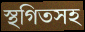
স্থগিতসহ